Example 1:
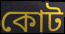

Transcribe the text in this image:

কোট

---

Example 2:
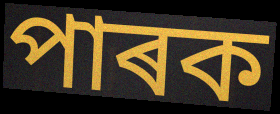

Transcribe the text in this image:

পাৰক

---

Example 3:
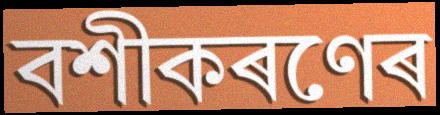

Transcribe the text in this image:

বশীকৰণেৰ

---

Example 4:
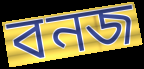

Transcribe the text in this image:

বনজ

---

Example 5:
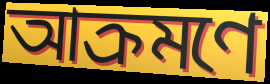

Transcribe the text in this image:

আক্ৰমণে